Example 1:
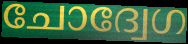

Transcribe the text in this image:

ചോദ്വേഗ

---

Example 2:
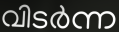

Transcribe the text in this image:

വിടർന്ന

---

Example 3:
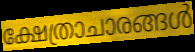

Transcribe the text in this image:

ക്ഷേത്രാചാരങ്ങൾ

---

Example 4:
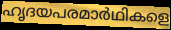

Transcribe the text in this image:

ഹൃദയപരമാർഥികളെ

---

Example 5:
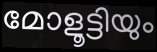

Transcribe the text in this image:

മോളൂട്ടിയും